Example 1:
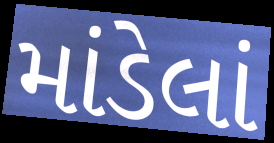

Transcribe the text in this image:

માંડેલાં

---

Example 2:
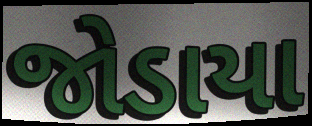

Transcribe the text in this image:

જોડાયા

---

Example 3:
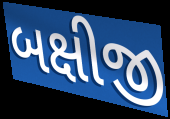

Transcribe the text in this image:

બક્ષીજી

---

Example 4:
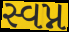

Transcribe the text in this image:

સ્વપ્ન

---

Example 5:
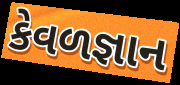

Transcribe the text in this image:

કેવળજ્ઞાન